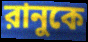
রানুকে